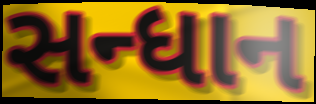
સન્ધાન